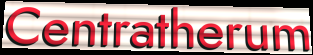
Centratherum